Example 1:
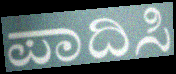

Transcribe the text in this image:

ಪಾದಿಸಿ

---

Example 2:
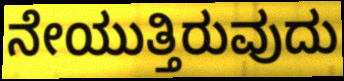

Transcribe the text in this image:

ನೇಯುತ್ತಿರುವುದು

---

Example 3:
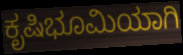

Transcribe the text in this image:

ಕೃಷಿಭೂಮಿಯಾಗಿ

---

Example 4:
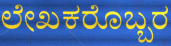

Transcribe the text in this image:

ಲೇಖಕರೊಬ್ಬರ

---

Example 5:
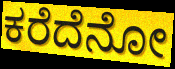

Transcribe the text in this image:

ಕರೆದೆನೋ